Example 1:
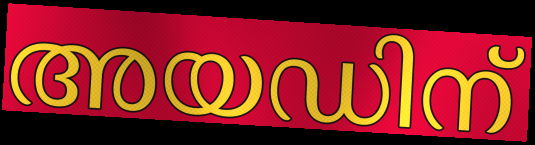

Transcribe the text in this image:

അയഡിന്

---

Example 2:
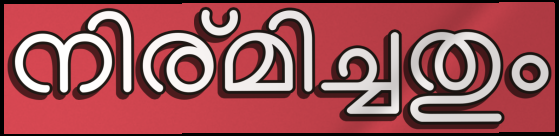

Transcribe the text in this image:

നിര്മിച്ചതും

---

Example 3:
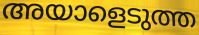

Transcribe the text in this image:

അയാളെടുത്ത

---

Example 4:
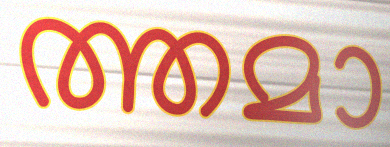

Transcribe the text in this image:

ത്തമാ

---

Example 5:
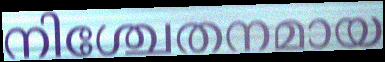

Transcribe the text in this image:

നിശ്ചേതനമായ